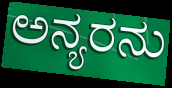
ಅನ್ಯರನು